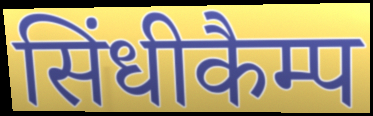
सिंधीकैम्प